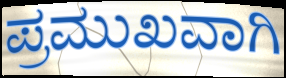
ಪ್ರಮುಖವಾಗಿ